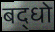
बद्धो